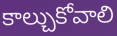
కాల్చుకోవాలి